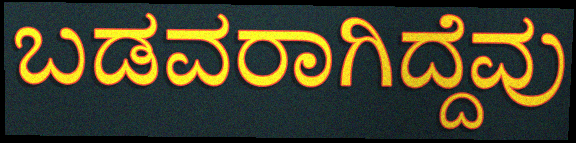
ಬಡವರಾಗಿದ್ದೆವು